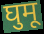
घुमू